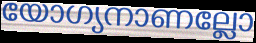
യോഗ്യനാണല്ലോ